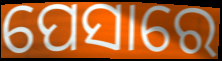
ପେସାରେ